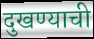
दुखण्याची